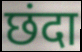
छंदा